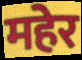
महेर